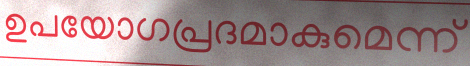
ഉപയോഗപ്രദമാകുമെന്ന്